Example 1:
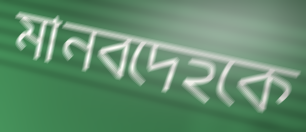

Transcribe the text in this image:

মানবদেহকে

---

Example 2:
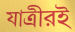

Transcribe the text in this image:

যাত্রীরই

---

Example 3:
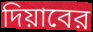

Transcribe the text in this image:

দিয়াবের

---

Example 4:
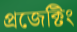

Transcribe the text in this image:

প্রজেক্টিং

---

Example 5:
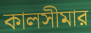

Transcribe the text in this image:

কালসীমার